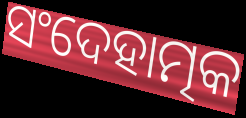
ସଂଦେହାତ୍ମକ